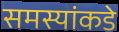
समस्यांकडे